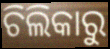
ଚିଲିକାରୁ